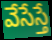
వేసేస్తే